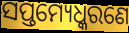
ସପ୍ତମ୍ୟେଧ୍କରଣେ